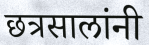
छत्रसालांनी